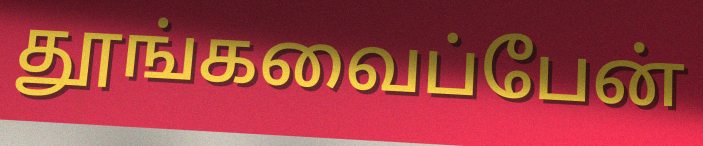
தூங்கவைப்பேன்